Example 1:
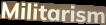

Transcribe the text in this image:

Militarism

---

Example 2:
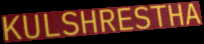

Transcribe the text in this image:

KULSHRESTHA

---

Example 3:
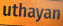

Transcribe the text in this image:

uthayan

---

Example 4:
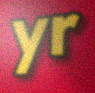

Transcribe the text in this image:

yr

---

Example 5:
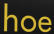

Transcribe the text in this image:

hoe